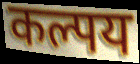
कल्पय